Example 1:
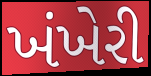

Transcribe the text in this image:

ખંખેરી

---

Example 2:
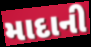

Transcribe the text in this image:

માદાની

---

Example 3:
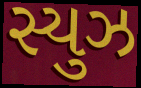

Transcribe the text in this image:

સ્યુઝ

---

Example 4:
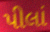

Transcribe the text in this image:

પીલાં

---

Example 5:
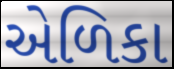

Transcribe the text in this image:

એળિકા